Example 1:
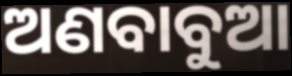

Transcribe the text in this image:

ଅଣବାବୁଆ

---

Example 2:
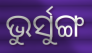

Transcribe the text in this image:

ଭୁର୍ସୁଙ୍ଗ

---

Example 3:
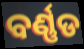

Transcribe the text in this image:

ବର୍ଣ୍ଣଡ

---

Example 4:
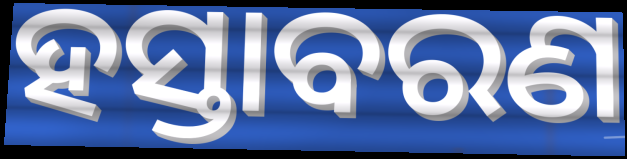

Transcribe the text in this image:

ହସ୍ତାବରଣ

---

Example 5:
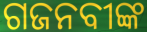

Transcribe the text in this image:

ଗଜନବୀଙ୍କ